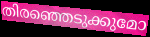
തിരഞ്ഞെടുക്കുമോ